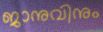
ജാനുവിനും